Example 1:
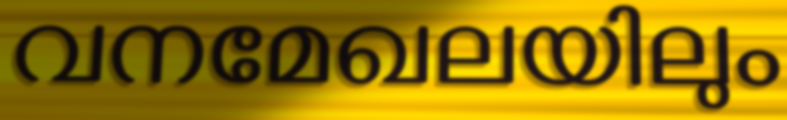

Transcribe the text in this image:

വനമേഖലയിലും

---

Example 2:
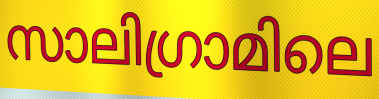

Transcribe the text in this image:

സാലിഗ്രാമിലെ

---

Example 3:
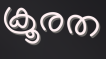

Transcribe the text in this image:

ക്രൂരത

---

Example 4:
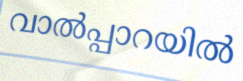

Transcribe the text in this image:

വാൽപ്പാറയിൽ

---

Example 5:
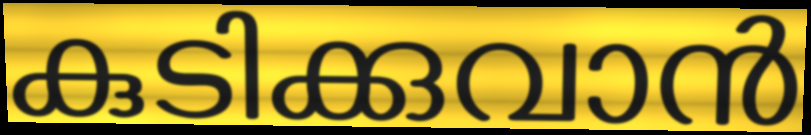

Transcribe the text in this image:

കുടിക്കുവാൻ